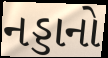
નડ્ડાનો